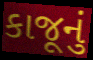
કાજૂનું